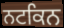
ਨਟਕਿਨ